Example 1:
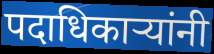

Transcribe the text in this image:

पदाधिकार्‍यांनी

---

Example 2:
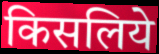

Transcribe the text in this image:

किसलिये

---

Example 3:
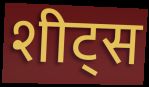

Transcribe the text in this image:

शीट्स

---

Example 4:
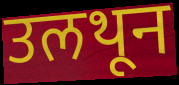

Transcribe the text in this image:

उलथून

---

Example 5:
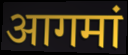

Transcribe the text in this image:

आगमां